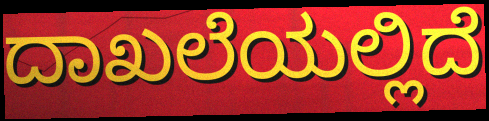
ದಾಖಲೆಯಲ್ಲಿದೆ